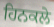
ਹਿਨਕਲੇ